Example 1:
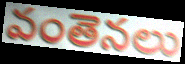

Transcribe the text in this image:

వంతెనలు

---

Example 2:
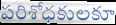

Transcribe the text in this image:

పరిశోధకులకూ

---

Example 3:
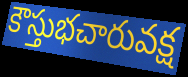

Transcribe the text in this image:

కౌస్తుభచారువక్ష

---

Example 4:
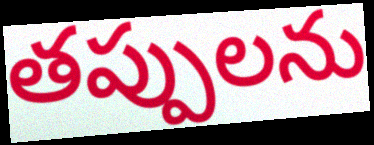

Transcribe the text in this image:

తప్పులను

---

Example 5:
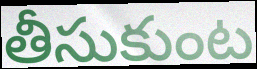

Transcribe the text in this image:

తీసుకుంట